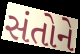
સંતોને